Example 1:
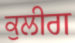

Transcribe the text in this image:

ਕੁਲੀਗ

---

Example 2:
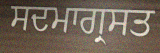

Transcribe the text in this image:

ਸਦਮਾਗ੍ਰਸਤ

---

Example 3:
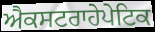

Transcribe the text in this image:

ਐਕਸਟਰਾਹੇਪੇਟਿਕ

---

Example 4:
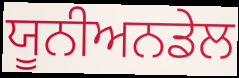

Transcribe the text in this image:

ਯੂਨੀਅਨਡੇਲ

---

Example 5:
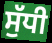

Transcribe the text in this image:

ਸੁੱਧੀ